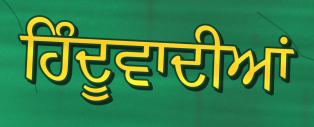
ਹਿੰਦੂਵਾਦੀਆਂ